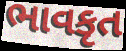
ભાવકૃત